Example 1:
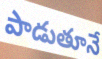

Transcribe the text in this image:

పాడుతూనే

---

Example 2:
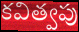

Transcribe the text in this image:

కవిత్వపు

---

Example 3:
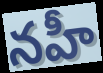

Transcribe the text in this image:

నహీ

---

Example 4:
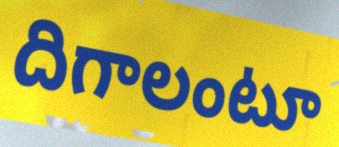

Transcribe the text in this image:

దిగాలంటూ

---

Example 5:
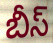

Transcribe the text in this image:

బీస్